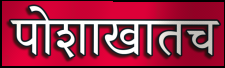
पोशाखातच